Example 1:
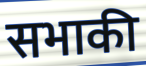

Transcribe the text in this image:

सभाकी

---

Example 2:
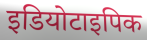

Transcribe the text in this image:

इडियोटाइपिक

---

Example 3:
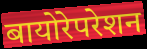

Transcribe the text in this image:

बायोरेपरेशन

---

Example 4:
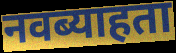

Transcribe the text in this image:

नवब्याहता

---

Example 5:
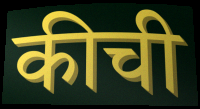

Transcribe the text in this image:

कीची